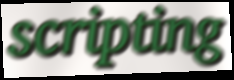
scripting